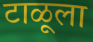
टाळूला